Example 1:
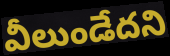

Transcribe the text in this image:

వీలుండేదని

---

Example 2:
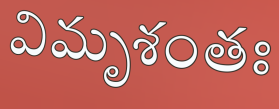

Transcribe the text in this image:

విమృశంతః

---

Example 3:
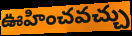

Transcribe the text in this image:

ఊహించవచ్చు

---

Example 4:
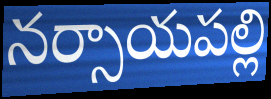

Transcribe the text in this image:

నర్సాయపల్లి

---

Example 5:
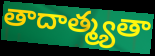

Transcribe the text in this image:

తాదాత్మ్యతా